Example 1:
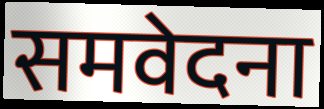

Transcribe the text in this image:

समवेदना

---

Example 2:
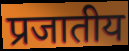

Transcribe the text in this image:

प्रजातीय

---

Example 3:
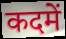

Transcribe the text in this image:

कदमें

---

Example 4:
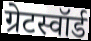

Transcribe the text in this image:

ग्रेटस्वॉर्ड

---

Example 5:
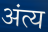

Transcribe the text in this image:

अंत्य